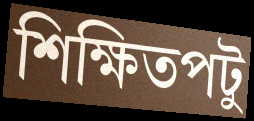
শিক্ষিতপটু